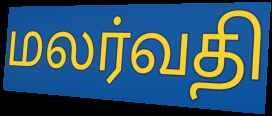
மலர்வதி